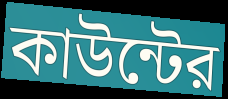
কাউন্টের